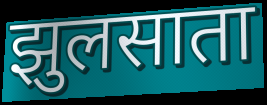
झुलसाता